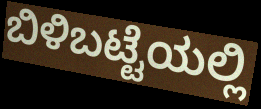
ಬಿಳಿಬಟ್ಟೆಯಲ್ಲಿ